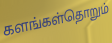
களங்கள்தொறும்